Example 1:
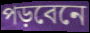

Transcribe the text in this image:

পড়বেনে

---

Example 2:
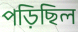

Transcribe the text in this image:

পড়িছিল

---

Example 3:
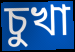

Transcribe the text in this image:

চুখা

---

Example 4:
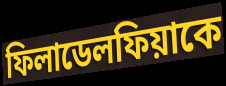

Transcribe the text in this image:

ফিলাডেলফিয়াকে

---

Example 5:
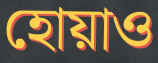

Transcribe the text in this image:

হোয়াও